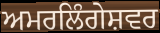
ਅਮਰਲਿੰਗੇਸ਼ਵਰ